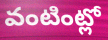
వంటింట్లో